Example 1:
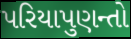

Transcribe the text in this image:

પરિયાપુણન્તો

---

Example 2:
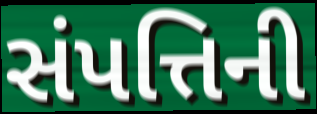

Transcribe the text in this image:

સંપત્તિની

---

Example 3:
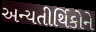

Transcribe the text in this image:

અન્યતીર્થિકોને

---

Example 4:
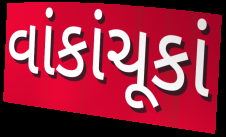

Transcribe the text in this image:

વાંકાંચૂકાં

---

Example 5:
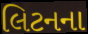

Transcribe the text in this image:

લિટનના